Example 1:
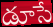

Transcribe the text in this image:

డూసే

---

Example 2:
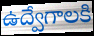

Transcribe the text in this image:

ఉద్వేగాలకి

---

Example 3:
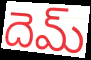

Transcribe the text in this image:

దెమ్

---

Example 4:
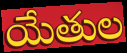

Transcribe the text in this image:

యేతుల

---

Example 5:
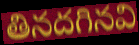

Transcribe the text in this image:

తినదగినవి